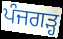
ਪੰਜਗੜ੍ਹ